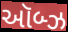
ઑબ્ઝ